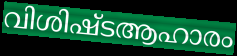
വിശിഷ്ടആഹാരം